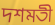
দশমতী